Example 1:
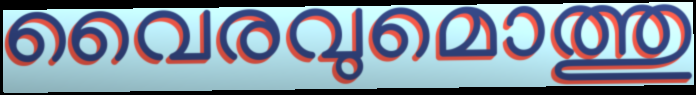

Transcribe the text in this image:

വൈരവുമൊത്തു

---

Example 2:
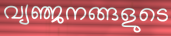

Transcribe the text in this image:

വ്യഞ്ജനങ്ങളുടെ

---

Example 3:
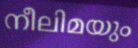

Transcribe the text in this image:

നീലിമയും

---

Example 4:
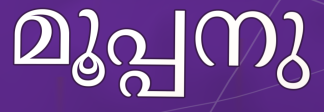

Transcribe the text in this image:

മൂപ്പനു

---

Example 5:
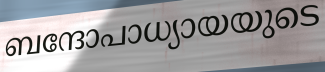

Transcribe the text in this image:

ബന്ദോപാധ്യായയുടെ